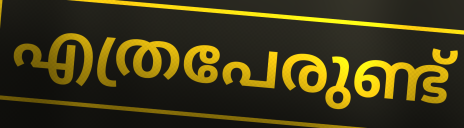
എത്രപേരുണ്ട്